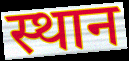
स्थान